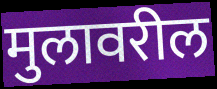
मुलावरील